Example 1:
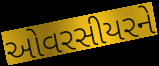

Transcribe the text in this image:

ઓવરસીયરને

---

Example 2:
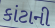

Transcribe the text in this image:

કાંટાની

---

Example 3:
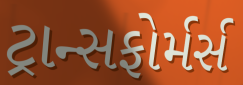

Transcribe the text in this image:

ટ્રાન્સફોર્મર્સ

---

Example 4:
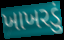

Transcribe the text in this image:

ખાખરડું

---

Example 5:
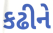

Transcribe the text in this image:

કઢીને